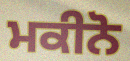
ਮਕੀਨੋ